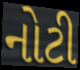
નોટી